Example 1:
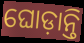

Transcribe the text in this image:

ଘୋଡ଼ାନ୍ତି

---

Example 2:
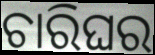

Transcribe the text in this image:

ଚାରିଘର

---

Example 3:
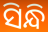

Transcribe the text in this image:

ସିନ୍ଧି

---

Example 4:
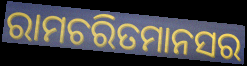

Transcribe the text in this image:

ରାମଚରିତମାନସର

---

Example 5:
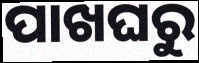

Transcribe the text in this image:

ପାଖଘରୁ